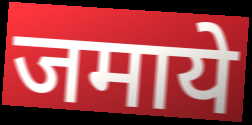
जमाये